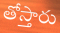
తోస్తారు